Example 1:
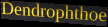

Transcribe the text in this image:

Dendrophthoe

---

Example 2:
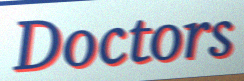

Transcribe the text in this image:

Doctors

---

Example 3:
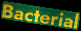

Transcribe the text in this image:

Bacterial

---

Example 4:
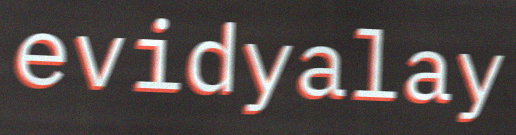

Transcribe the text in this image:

evidyalay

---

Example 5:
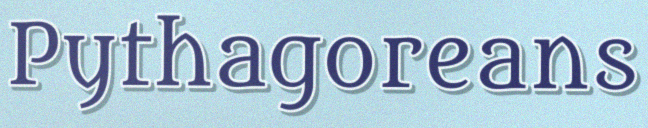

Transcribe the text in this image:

Pythagoreans